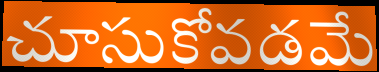
చూసుకోవడమే